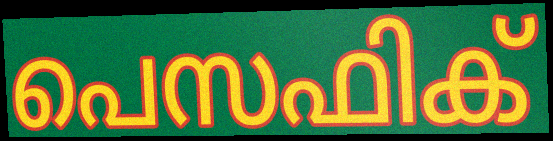
പെസഫിക്